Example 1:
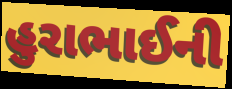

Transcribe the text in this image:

હુરાભાઈની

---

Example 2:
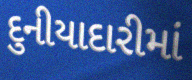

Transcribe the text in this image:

દુનીયાદારીમાં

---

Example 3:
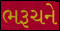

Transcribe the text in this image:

ભરૂચને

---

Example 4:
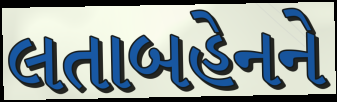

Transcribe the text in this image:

લતાબહેનને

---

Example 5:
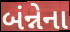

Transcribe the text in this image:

બંન્નેના